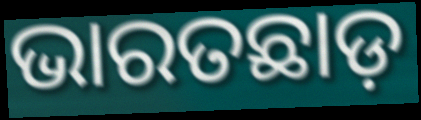
ଭାରତଛାଡ଼